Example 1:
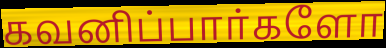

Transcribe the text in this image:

கவனிப்பார்களோ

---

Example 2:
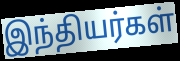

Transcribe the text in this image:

இந்தியர்கள்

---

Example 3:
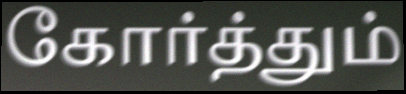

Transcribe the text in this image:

கோர்த்தும்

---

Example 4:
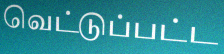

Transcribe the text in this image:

வெட்டுப்பட்ட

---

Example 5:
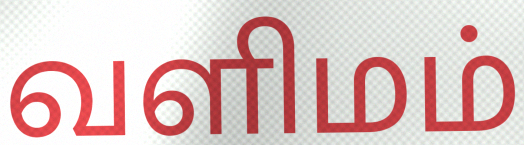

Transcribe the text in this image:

வளிமம்